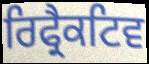
ਰਿਫ੍ਰੈਕਟਿਵ